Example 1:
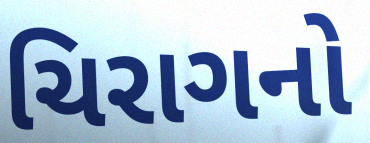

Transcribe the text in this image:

ચિરાગનો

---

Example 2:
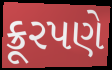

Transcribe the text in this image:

ક્રૂરપણે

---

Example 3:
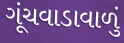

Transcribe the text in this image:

ગૂંચવાડાવાળું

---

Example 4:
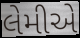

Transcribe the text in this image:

લેમીએ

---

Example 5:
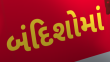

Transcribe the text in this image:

બંદિશોમાં